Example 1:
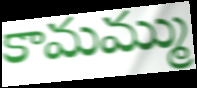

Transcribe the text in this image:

కామమ్ము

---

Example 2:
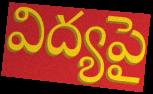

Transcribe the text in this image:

విద్యపై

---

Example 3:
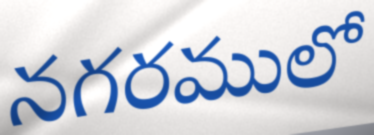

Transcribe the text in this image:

నగరములో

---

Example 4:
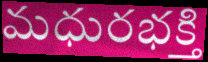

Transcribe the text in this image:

మధురభక్తి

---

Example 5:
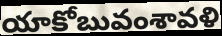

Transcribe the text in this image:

యాకోబువంశావళి